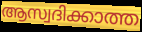
ആസ്വദിക്കാത്ത